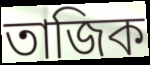
তাজিক